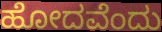
ಹೋದವೆಂದು